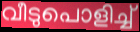
വീടുപൊളിച്ച്